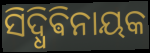
ସିଦ୍ଧିଵିନାୟକ